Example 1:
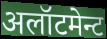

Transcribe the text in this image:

अलॉटमेन्ट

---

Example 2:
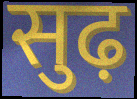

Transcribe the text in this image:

सुढ़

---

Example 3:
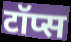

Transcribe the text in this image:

टॉप्स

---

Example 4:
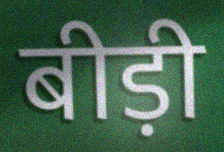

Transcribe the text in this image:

बीड़ी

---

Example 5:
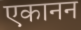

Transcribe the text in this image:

एकानन